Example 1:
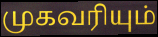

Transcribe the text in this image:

முகவரியும்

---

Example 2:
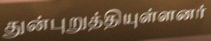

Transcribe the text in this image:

துன்புறுத்தியுள்ளனர்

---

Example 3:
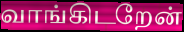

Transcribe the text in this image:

வாங்கிடறேன்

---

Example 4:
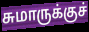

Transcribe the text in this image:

சுமாருக்குச்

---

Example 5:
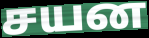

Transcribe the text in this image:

சயன